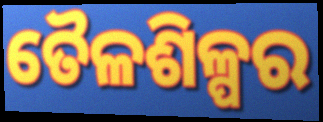
ତୈଳଶିଳ୍ପର